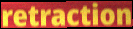
retraction